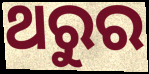
ଥରୁର